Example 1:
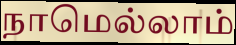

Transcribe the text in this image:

நாமெல்லாம்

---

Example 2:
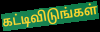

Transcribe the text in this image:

கட்டிவிடுங்கள்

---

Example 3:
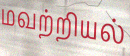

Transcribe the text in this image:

மவற்றியல்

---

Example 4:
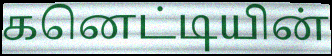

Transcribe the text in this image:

கனெட்டியின்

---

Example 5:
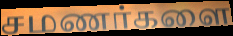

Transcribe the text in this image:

சமணர்களை